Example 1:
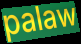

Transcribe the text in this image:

palaw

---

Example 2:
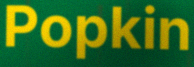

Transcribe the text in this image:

Popkin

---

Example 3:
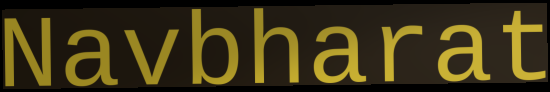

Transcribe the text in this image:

Navbharat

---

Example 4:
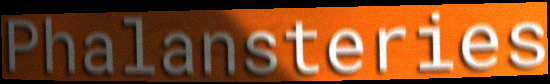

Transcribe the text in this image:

Phalansteries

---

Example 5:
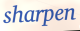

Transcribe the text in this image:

sharpen